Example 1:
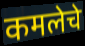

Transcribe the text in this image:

कमलेचे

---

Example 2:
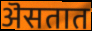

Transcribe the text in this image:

ऄसतात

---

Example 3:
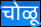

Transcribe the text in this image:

चोळू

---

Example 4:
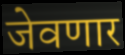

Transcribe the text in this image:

जेवणार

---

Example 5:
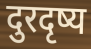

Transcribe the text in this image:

दुरदृष्य